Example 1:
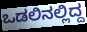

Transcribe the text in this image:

ಒಡಲಿನಲ್ಲಿದ್ದ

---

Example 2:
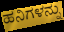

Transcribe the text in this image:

ಹನಿಗಳನ್ನು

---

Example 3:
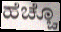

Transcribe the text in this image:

ಹೆಚ್ಚೊ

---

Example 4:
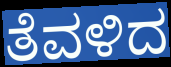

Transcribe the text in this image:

ತೆವಳಿದ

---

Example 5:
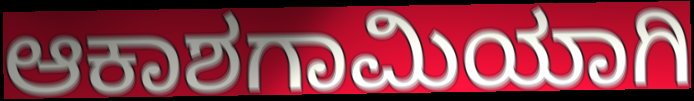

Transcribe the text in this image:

ಆಕಾಶಗಾಮಿಯಾಗಿ